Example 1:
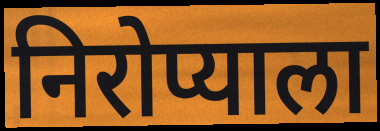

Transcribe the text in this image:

निरोप्याला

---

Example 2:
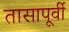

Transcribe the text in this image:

तासापूर्वी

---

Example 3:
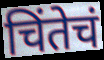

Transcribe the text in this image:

चिंतेचं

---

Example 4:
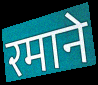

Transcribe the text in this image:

रमाने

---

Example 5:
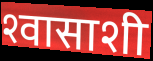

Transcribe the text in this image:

श्वासाशी